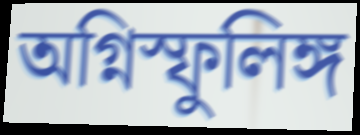
অগ্নিস্ফুলিঙ্গ